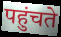
पहुंचते